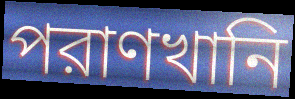
পরাণখানি